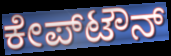
ಕೇಪ್‌ಟೌನ್